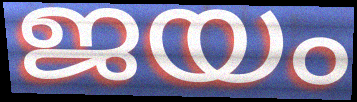
ജയം